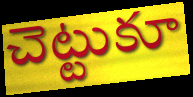
చెట్టుకూ